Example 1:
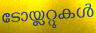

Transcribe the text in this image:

ടോയ്ലറ്റുകൾ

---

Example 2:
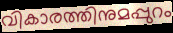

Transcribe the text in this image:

വികാരത്തിനുമപ്പുറം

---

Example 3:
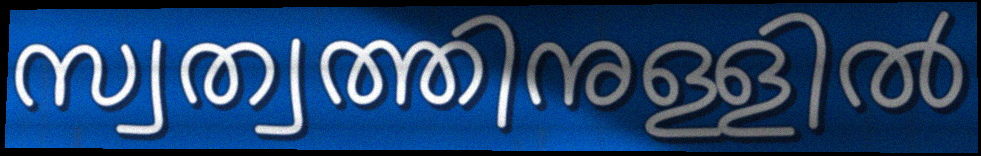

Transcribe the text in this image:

സ്വത്വത്തിനുള്ളിൽ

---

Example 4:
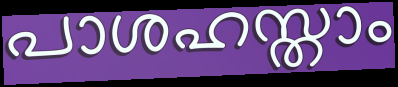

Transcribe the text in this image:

പാശഹസ്താം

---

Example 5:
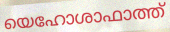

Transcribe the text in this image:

യെഹോശാഫാത്ത്